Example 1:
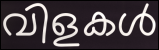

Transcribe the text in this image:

വിളകൾ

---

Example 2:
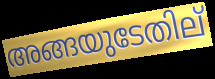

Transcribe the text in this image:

അങ്ങയുടേതില്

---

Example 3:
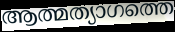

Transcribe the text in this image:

ആത്മത്യാഗത്തെ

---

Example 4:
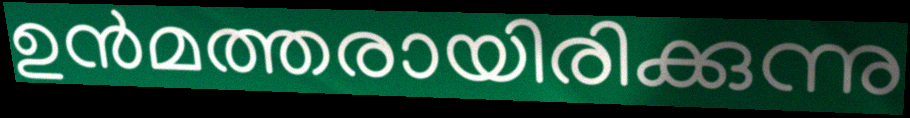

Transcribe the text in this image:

ഉൻമത്തരായിരിക്കുന്നു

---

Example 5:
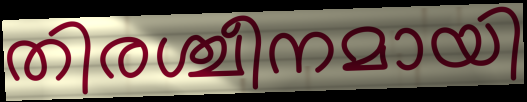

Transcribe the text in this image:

തിരശ്ചീനമായി